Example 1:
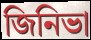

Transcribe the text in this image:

জিনিভা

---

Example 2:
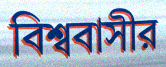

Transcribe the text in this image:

বিশ্ববাসীর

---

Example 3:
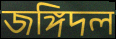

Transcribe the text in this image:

জঙ্গিদল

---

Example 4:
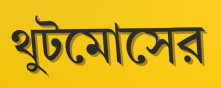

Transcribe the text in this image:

থুটমোসের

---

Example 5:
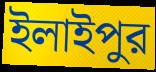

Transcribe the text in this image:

ইলাইপুর